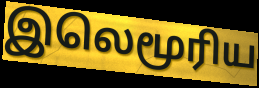
இலெமூரிய